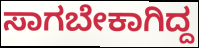
ಸಾಗಬೇಕಾಗಿದ್ದ